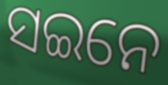
ସଇନେ